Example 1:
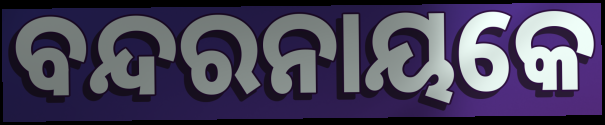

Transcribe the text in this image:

ବନ୍ଦରନାୟକେ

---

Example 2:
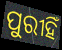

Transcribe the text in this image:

ପୁରୀହିଁ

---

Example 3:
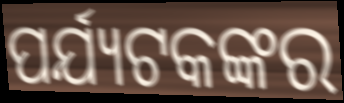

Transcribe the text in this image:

ପର୍ଯ୍ୟଟକଙ୍କର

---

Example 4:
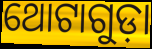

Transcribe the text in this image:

ଥୋଟାଗୁଡ଼ା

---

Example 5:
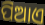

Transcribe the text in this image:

ପିଆଏ